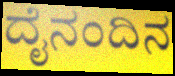
ದೈನಂದಿನ